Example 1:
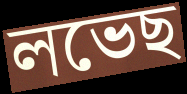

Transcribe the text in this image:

লভেছ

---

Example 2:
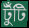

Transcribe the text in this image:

টুঁটি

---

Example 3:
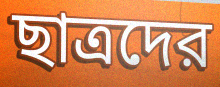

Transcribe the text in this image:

ছাত্রদের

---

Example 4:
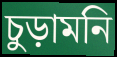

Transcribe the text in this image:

চুড়ামনি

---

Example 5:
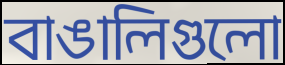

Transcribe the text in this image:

বাঙালিগুলো